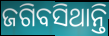
ଜଗିବସିଥାନ୍ତି